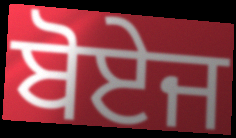
ਬੋਏਜ